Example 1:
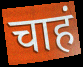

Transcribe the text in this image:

चाहं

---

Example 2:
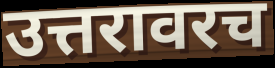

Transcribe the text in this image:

उत्तरावरच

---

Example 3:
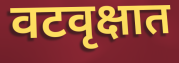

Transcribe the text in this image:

वटवृक्षात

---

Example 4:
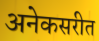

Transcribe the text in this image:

अनेकसरीत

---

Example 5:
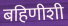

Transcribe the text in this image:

बहिणीशी